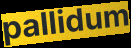
pallidum